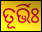
ତୂର୍ଭିଃ